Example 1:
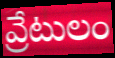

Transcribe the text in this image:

వ్రేటులం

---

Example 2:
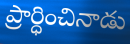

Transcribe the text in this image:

ప్రార్ధించినాడు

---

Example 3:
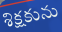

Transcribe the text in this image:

శిక్షకును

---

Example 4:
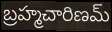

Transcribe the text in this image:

బ్రహ్మచారిణమ్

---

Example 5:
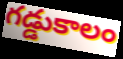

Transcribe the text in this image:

గడ్డుకాలం